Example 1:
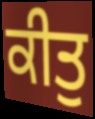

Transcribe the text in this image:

ਕੀਤੁ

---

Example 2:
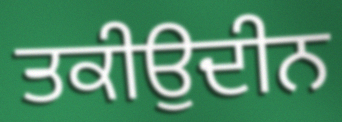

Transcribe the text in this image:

ਤਕੀਉਦੀਨ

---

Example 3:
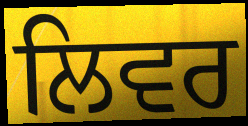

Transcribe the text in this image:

ਲਿਵਰ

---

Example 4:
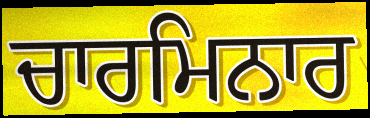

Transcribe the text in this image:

ਚਾਰਮਿਨਾਰ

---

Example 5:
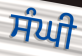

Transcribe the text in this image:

ਸੰਘੀ